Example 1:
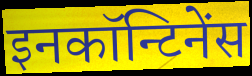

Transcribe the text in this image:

इनकॉन्टिनेंस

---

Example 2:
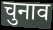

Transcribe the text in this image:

चुनाव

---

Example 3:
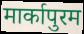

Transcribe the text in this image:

मार्कापुरम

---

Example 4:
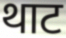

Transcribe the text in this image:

थाट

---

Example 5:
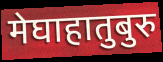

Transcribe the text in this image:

मेघाहातुबुरु